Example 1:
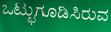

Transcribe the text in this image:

ಒಟ್ಟುಗೂಡಿಸಿರುವ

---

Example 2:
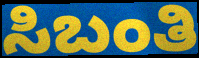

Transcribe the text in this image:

ಸಿಬಂತಿ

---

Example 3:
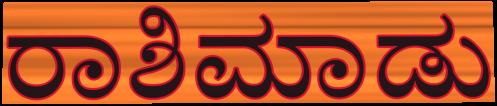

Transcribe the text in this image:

ರಾಶಿಮಾಡು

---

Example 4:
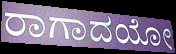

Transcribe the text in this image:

ರಾಗಾದಯೋ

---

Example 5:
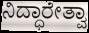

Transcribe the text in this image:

ನಿದ್ಧಾರೇತ್ವಾ